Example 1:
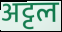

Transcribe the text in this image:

अट्टल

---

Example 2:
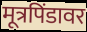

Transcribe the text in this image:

मूत्रपिंडावर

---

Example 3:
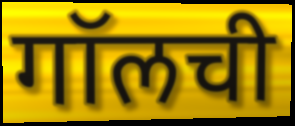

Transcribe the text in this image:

गॉलची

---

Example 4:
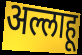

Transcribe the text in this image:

अल्लाहू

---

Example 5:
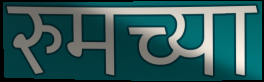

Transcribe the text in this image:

रुमच्या